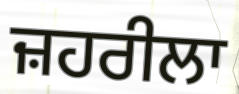
ਜ਼ਹਰੀਲਾ